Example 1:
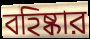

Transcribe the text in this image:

বহিষ্কার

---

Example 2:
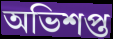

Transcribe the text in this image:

অভিশপ্ত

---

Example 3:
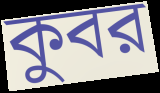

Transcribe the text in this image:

কুবর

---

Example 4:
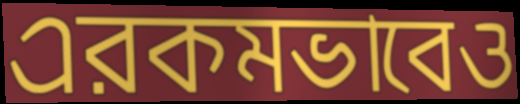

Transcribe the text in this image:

এরকমভাবেও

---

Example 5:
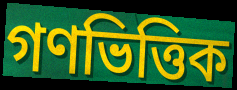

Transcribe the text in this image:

গণভিত্তিক